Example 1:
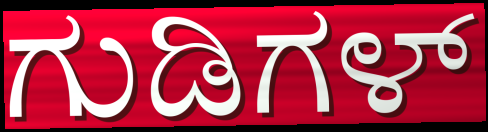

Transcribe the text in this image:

ಗುಡಿಗಳ್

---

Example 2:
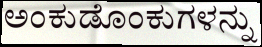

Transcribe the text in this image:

ಅಂಕುಡೊಂಕುಗಳನ್ನು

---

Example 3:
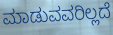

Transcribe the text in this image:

ಮಾಡುವವರಿಲ್ಲದೆ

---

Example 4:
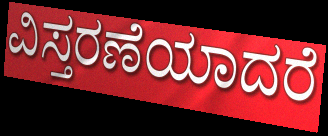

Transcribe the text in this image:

ವಿಸ್ತರಣೆಯಾದರೆ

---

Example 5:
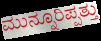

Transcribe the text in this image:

ಮುನ್ನೂರಿಪ್ಪತ್ತು